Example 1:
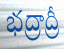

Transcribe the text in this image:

భద్రాద్రీ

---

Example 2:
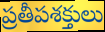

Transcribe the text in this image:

ప్రతీపశక్తులు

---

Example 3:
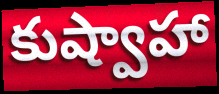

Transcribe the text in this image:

కుష్వాహా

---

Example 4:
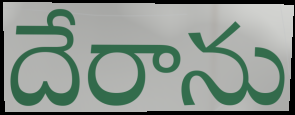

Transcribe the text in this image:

దేరాను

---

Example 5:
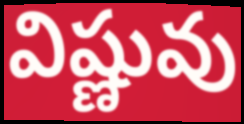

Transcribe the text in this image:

విష్ణువు